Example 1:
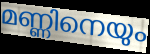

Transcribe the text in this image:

മണ്ണിനെയും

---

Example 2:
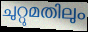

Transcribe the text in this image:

ചുറ്റുമതിലും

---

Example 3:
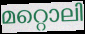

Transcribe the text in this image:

മറ്റൊലി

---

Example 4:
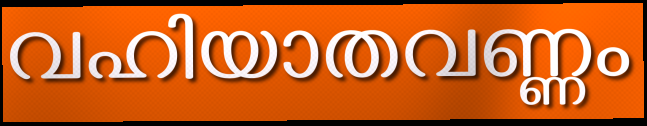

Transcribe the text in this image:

വഹിയാതവണ്ണം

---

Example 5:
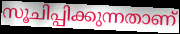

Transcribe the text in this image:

സൂചിപ്പിക്കുന്നതാണ്